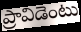
ప్రావిడెంటు